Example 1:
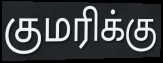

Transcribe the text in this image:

குமரிக்கு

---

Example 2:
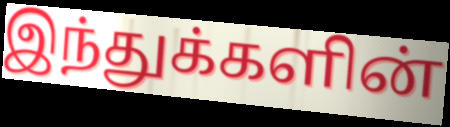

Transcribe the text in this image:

இந்துக்களின்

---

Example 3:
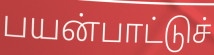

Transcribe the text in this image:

பயன்பாட்டுச்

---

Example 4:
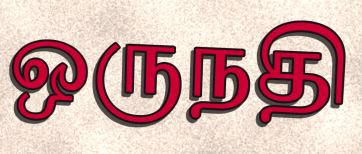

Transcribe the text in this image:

ஒருநதி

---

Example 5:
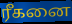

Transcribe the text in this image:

ரீகனை